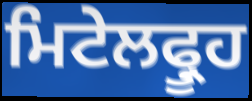
ਮਿਟੇਲਫ੍ਰੂਹ